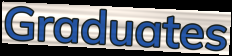
Graduates